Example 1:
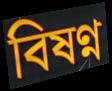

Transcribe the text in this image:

বিষণ্ন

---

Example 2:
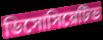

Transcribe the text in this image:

ডিসোসিয়েটিভ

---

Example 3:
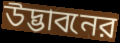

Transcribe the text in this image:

উদ্ভাবনের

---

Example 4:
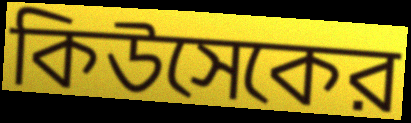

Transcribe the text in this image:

কিউসেকের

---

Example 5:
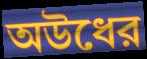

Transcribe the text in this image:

অউধের